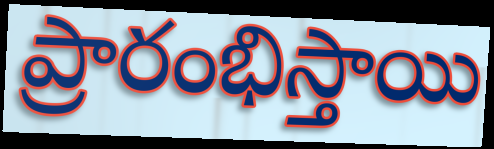
ప్రారంభిస్తాయి